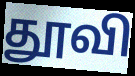
தூவி